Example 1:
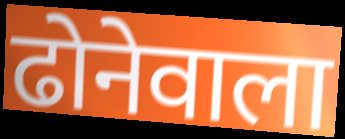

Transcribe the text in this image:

ढोनेवाला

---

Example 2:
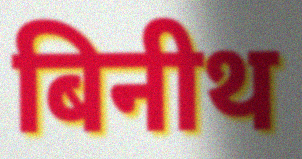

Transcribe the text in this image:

बिनीथ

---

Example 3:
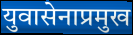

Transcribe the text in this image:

युवासेनाप्रमुख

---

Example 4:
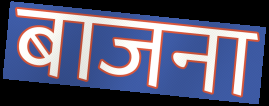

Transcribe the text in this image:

बाजना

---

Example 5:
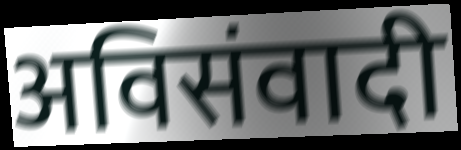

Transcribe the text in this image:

अविसंवादी